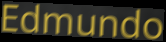
Edmundo